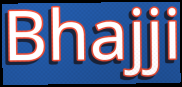
Bhajji